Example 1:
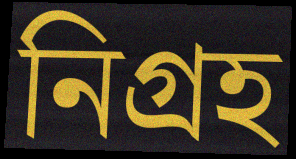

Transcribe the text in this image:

নিগ্রহ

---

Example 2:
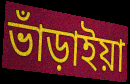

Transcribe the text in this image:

ভাঁড়াইয়া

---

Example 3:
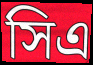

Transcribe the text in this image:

সিএ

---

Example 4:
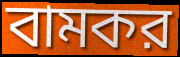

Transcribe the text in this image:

বামকর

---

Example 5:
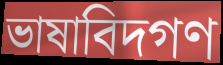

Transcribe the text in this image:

ভাষাবিদগণ